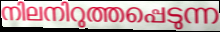
നിലനിറുത്തപ്പെടുന്ന